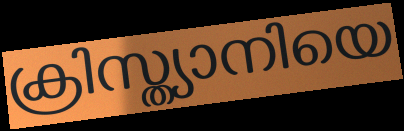
ക്രിസ്ത്യാനിയെ